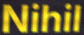
Nihil